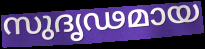
സുദൃഢമായ